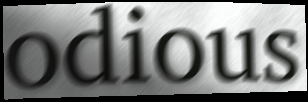
odious